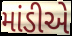
માંડીએ